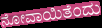
ನೋವಾಯಿತೆಂದು